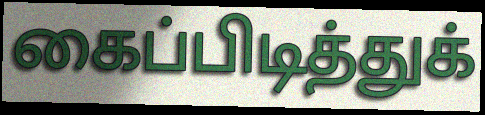
கைப்பிடித்துக்